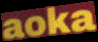
aoka